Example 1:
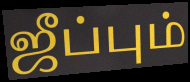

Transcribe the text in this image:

ஜீப்பும்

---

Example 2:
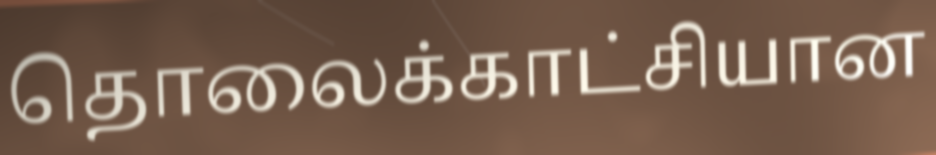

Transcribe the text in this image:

தொலைக்காட்சியான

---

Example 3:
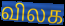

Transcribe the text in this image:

விலக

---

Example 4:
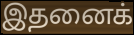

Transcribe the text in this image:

இதனைக்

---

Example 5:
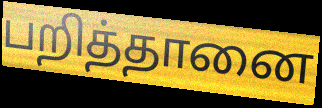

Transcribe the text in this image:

பறித்தானை